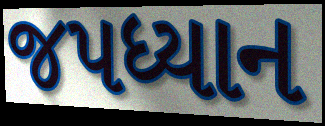
જપધ્યાન